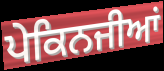
ਪੇਕਿਨਜੀਆਂ